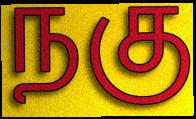
நகு